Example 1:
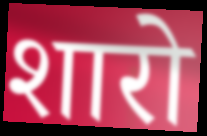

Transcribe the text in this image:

शारो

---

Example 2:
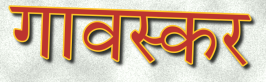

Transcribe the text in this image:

गावस्कर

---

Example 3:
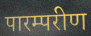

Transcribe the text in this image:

पारम्परीण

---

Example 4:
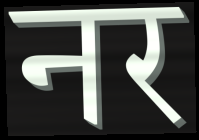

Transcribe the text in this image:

नर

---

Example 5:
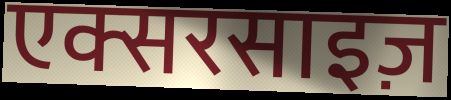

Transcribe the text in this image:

एक्सरसाइज़